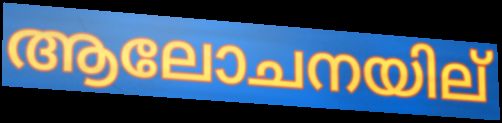
ആലോചനയില്